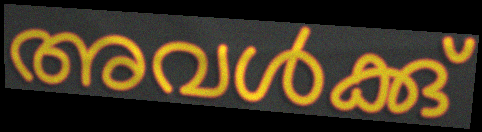
അവൾക്കു്